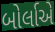
બોર્લાએ